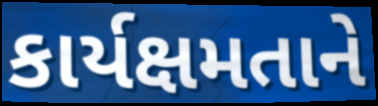
કાર્યક્ષમતાને